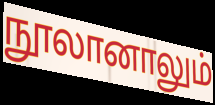
நூலானாலும்